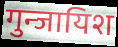
गुन्जायिश